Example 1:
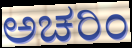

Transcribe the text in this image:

ಅಚರಿಂ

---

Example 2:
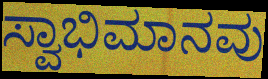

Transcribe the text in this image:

ಸ್ವಾಭಿಮಾನವು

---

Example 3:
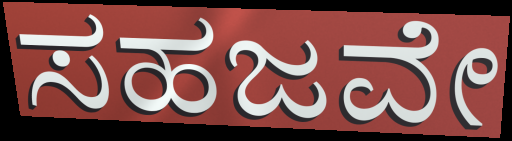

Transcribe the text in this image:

ಸಹಜವೇ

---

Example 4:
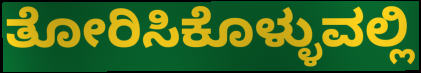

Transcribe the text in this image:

ತೋರಿಸಿಕೊಳ್ಳುವಲ್ಲಿ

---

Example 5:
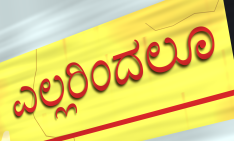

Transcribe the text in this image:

ಎಲ್ಲರಿಂದಲೂ